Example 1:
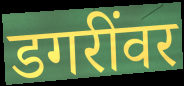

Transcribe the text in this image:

डगरींवर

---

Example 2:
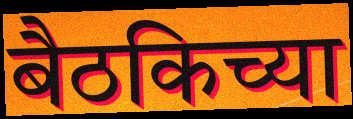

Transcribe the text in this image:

बैठकिच्या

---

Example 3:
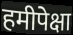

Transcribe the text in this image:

हमीपेक्षा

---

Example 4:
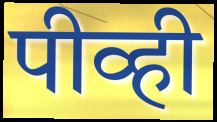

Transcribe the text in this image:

पीव्ही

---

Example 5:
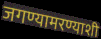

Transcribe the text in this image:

जगण्यामरण्याशी